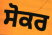
ਸੋਕਰ